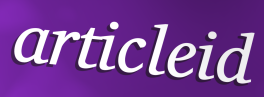
articleid